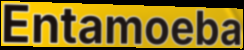
Entamoeba